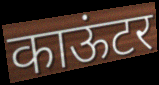
काऊंटर